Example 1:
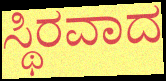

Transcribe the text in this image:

ಸ್ಥಿರವಾದ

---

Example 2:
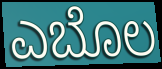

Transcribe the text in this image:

ಎಬೊಲ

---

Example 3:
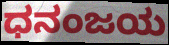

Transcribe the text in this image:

ಧನಂಜಯ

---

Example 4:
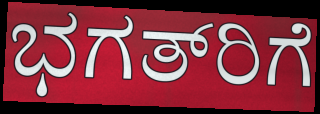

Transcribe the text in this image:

ಭಗತ್‍ರಿಗೆ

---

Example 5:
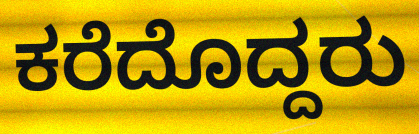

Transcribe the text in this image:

ಕರೆದೊದ್ದರು